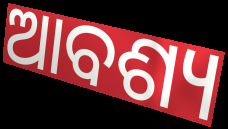
ଆବଶ୍ୟ